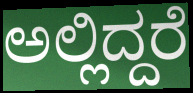
ಅಲ್ಲಿದ್ದರೆ